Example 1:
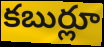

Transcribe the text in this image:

కబుర్లూ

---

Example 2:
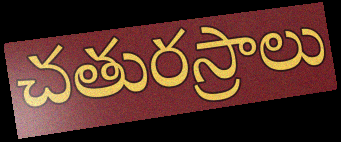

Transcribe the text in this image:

చతురస్రాలు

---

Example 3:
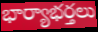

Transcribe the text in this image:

భార్యాభర్తలు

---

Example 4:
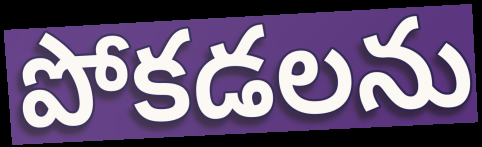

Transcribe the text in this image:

పోకడలను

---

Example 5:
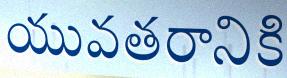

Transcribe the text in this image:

యువతరానికి